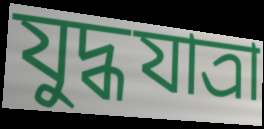
যুদ্ধযাত্রা